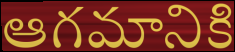
ఆగమానికి